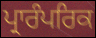
ਪ੍ਰਾਰੰਪਰਿਕ